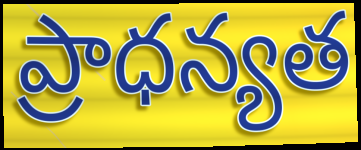
ప్రాధన్యత